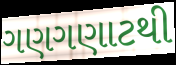
ગણગણાટથી